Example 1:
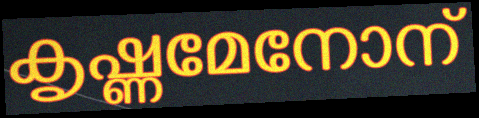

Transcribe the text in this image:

കൃഷ്ണമേനോന്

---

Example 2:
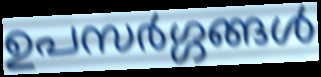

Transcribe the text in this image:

ഉപസർഗ്ഗങ്ങൾ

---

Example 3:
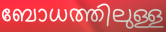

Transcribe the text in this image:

ബോധത്തിലുള്ള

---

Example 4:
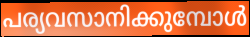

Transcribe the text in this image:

പര്യവസാനിക്കുമ്പോൾ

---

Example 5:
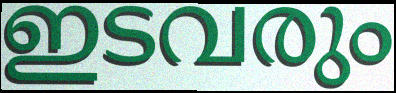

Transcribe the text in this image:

ഇടവരും